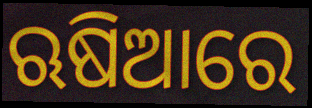
ଋଷିଆରେ